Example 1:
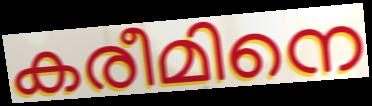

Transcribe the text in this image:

കരീമിനെ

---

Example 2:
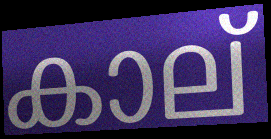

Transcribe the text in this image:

കാല്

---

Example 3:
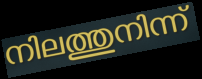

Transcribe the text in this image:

നിലത്തുനിന്ന്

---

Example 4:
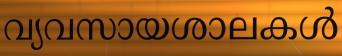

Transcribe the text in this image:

വ്യവസായശാലകൾ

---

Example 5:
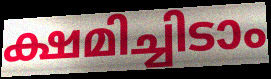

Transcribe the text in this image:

ക്ഷമിച്ചിടാം